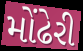
મોંઢેરી